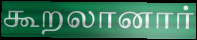
கூறலானார்